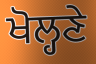
ਖੋਲ੍ਹਣੇ